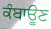
ਕੰਬਾਊਣ